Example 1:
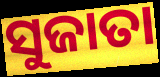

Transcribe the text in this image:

ସୁଜାତା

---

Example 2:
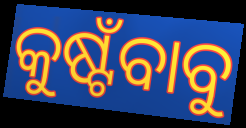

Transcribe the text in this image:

କୁଷ୍ଟଁବାବୁ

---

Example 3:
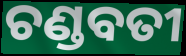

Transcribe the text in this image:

ଚଣ୍ଡବତୀ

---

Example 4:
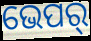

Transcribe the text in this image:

ଭେପର୍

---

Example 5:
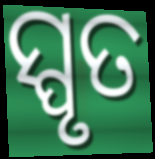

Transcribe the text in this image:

ସ୍ପୃତ